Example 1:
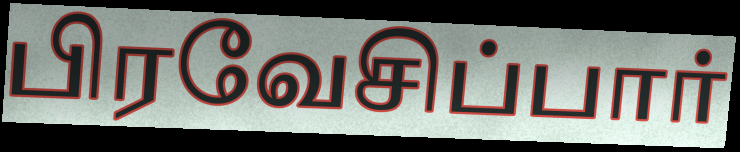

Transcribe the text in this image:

பிரவேசிப்பார்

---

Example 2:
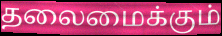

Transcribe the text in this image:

தலைமைக்கும்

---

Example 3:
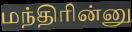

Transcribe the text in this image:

மந்திரின்னு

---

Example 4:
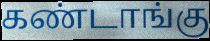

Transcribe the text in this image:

கண்டாங்கு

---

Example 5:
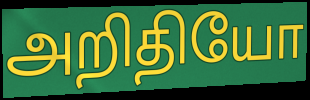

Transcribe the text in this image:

அறிதியோ